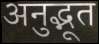
अनुद्भूत